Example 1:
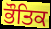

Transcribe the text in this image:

ਭੌਤਿਕ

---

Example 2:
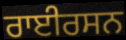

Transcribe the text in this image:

ਰਾਈਰਸਨ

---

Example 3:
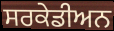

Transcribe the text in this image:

ਸਰਕੇਡੀਅਨ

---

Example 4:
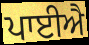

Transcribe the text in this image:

ਪਾਈਐ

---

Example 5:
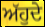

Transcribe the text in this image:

ਅੱਹੁਦੇ